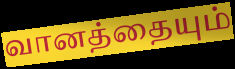
வானத்தையும்